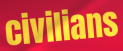
civilians